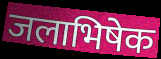
जलाभिषेक